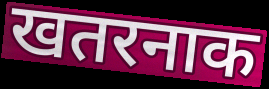
खतरनाक